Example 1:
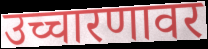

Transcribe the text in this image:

उच्चारणावर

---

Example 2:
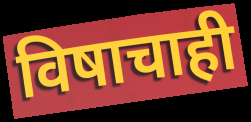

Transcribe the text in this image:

विषाचाही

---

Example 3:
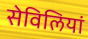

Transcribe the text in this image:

सेविलियां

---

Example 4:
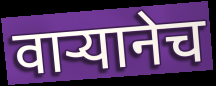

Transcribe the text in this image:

वाऱ्यानेच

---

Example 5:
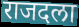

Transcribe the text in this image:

राजदला